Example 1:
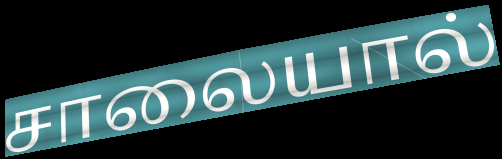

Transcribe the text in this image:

சாலையால்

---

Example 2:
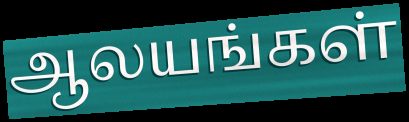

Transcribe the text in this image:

ஆலயங்கள்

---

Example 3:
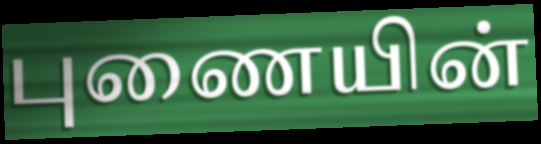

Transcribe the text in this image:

புணையின்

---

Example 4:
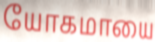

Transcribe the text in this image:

யோகமாயை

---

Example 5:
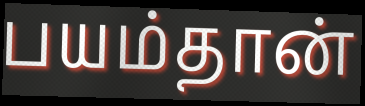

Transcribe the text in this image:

பயம்தான்